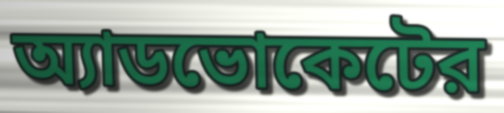
অ্যাডভোকেটের